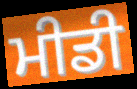
ਮੀਡੀ